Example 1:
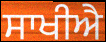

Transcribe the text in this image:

ਸਾਖੀਐ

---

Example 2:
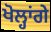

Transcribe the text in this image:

ਖੋਲ੍ਹਾਂਗੇ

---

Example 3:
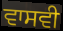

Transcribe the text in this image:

ਵਾਸਵੀ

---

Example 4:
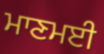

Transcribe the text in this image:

ਮਾਣਮਈ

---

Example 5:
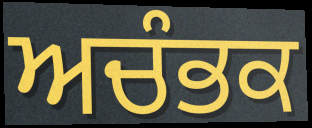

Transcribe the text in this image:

ਅਚੰਭਕ